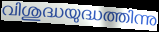
വിശുദ്ധയുദ്ധത്തിന്നു